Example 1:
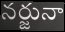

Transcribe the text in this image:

నర్జునా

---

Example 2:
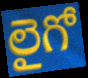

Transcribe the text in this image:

లైగో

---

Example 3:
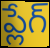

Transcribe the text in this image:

ప్లేగ్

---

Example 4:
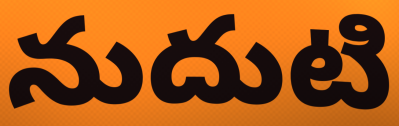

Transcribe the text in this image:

నుదుటి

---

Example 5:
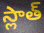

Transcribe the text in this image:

స్లాత్